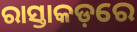
ରାସ୍ତାକଡ଼ରେ